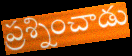
ప్రశ్నించాడు